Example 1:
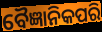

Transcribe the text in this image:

ବୈଜ୍ଞାନିକପରି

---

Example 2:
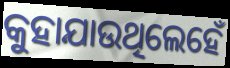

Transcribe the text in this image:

କୁହାଯାଉଥିଲେହେଁ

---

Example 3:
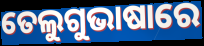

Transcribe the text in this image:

ତେଲୁଗୁଭାଷାରେ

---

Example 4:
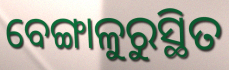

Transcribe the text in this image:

ବେଙ୍ଗାଳୁରୁସ୍ଥିତ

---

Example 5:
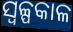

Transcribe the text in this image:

ସ୍ୱଳ୍ପକାଳ